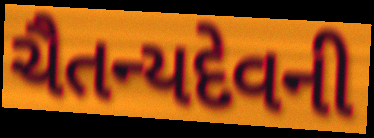
ચૈતન્યદેવની